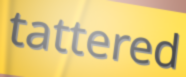
tattered